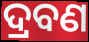
ଦ୍ରବଣ